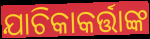
ଯାଚିକାକର୍ତ୍ତାଙ୍କ